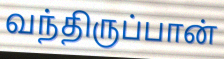
வந்திருப்பான்